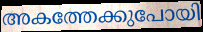
അകത്തേക്കുപോയി